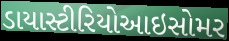
ડાયાસ્ટીરિયોઆઇસોમર